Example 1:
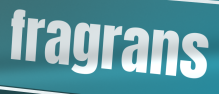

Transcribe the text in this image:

fragrans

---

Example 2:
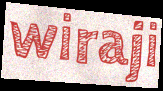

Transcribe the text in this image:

wiraji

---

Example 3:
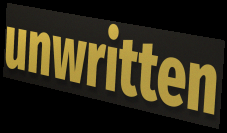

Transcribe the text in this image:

unwritten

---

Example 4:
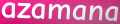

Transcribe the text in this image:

azamana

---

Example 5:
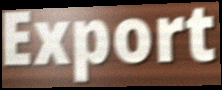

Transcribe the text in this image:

Export